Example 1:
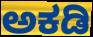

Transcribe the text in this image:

ಅಕಡಿ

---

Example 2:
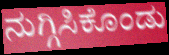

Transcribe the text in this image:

ನುಗ್ಗಿಸಿಕೊಂಡು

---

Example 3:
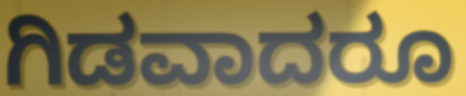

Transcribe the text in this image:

ಗಿಡವಾದರೂ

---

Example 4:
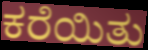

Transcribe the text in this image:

ಕರೆಯಿತು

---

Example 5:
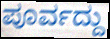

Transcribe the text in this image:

ಪೂರ್ವದ್ದು